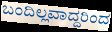
ಬಂದಿಲ್ಲವಾದ್ದರಿಂದ